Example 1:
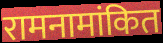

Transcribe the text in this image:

रामनामांकित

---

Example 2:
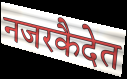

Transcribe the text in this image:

नजरकैदेत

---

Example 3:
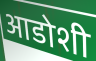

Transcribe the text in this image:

आडोशी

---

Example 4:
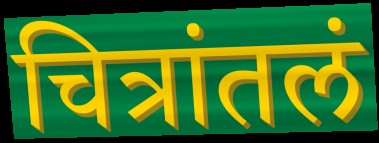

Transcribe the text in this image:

चित्रांतलं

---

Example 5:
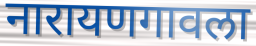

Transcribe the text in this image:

नारायणगावला